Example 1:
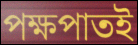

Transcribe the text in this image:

পক্ষপাতই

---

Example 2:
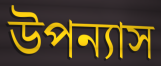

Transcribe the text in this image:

উপন্যাস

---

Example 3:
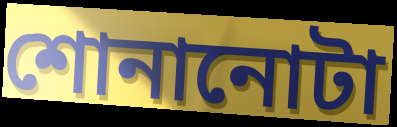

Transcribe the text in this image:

শোনানোটা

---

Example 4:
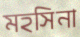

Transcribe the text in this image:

মহসিনা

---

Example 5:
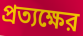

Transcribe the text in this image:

প্রত্যক্ষের